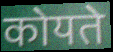
कोयते